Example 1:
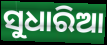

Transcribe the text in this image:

ସୁଧାରିଆ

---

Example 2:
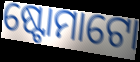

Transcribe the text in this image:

ଷ୍ଟୋମାଟୋ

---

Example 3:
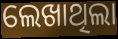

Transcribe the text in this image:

ଲେଖାଥିଲା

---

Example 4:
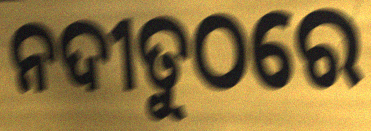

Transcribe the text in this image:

ନଦୀତୁଠରେ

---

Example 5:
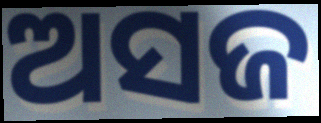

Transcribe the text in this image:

ଅସଜ